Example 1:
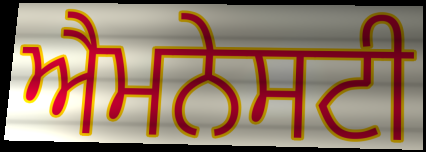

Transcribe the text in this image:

ਐਮਨੇਸਟੀ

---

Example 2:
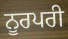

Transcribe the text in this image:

ਨੂਰਪਰੀ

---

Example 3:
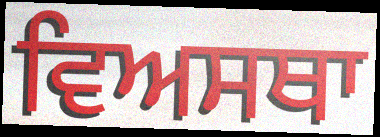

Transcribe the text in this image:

ਵਿਅਸਥਾ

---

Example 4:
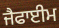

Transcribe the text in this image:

ਜੈਫਾਈਮ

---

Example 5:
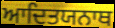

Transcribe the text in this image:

ਆਦਿਤਯਨਾਥ